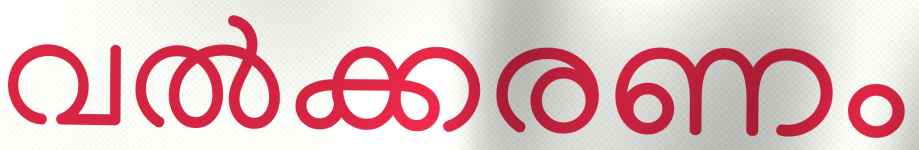
വൽക്കരണം